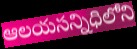
ఆలయసన్నిధిలోని